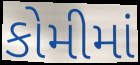
કોમીમાં